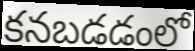
కనబడడంలో